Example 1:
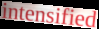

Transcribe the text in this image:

intensified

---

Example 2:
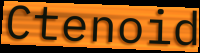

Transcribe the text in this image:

Ctenoid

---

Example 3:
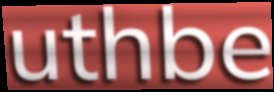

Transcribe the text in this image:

uthbe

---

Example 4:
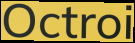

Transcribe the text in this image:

Octroi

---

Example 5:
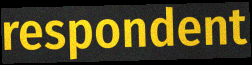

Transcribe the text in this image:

respondent